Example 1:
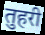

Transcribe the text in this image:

तुहरी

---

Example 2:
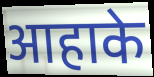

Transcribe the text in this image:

आहाके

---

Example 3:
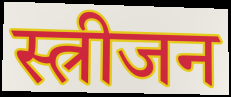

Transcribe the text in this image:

स्त्रीजन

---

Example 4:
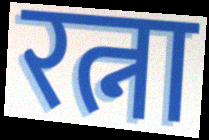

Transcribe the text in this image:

रत्ना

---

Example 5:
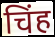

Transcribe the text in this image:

चिंह